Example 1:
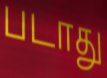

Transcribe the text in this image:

படாது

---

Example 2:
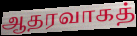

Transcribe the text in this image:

ஆதரவாகத்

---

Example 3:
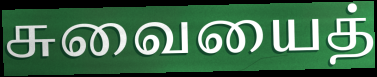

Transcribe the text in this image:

சுவையைத்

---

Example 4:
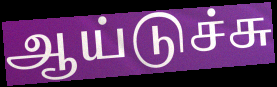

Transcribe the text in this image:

ஆய்டுச்சு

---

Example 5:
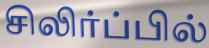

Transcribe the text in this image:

சிலிர்ப்பில்